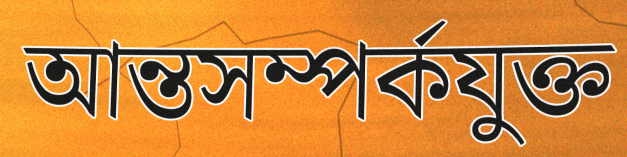
আন্তসম্পর্কযুক্ত